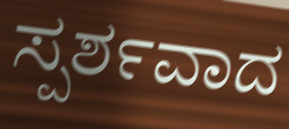
ಸ್ಪರ್ಶವಾದ